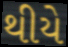
થીયે